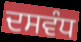
ਦਸਵੰਧ